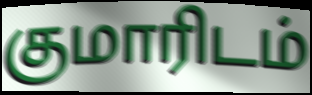
குமாரிடம்